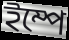
ইম্পে